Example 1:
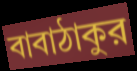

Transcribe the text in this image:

বাবাঠাকুর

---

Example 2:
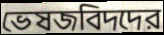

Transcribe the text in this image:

ভেষজবিদদের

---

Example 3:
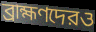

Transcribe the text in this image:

ব্রাহ্মণদেরও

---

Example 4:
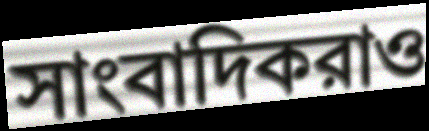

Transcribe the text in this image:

সাংবাদিকরাও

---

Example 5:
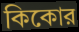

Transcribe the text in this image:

কিকোর